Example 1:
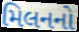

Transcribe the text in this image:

મિલનનો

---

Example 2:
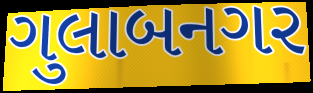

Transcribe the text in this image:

ગુલાબનગર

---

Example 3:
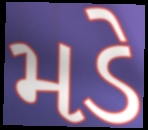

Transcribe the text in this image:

મડે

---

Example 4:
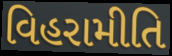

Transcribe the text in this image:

વિહરામીતિ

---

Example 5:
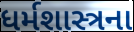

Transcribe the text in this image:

ધર્મશાસ્ત્રના